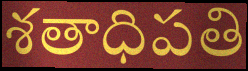
శతాధిపతి